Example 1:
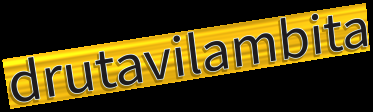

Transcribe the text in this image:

drutavilambita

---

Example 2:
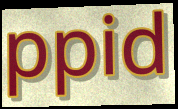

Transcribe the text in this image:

ppid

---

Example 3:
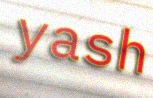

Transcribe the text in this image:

yash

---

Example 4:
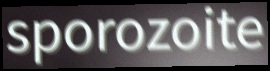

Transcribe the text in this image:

sporozoite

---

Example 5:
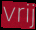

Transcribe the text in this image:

vrij